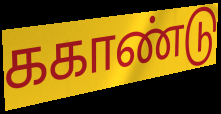
ககாண்டு